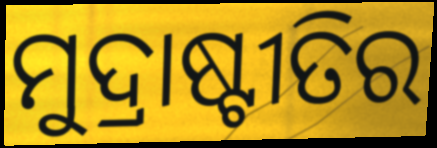
ମୁଦ୍ରାଷ୍ଟୀତିର